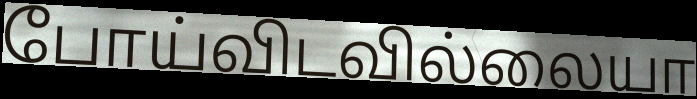
போய்விடவில்லையா